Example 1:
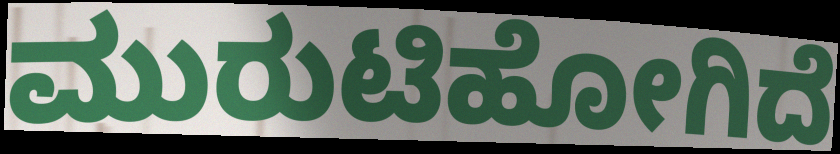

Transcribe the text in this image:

ಮುರುಟಿಹೋಗಿದೆ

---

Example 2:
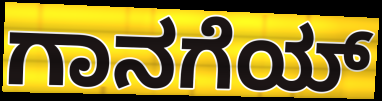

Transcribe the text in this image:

ಗಾನಗೆಯ್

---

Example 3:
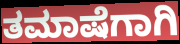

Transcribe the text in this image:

ತಮಾಷೆಗಾಗಿ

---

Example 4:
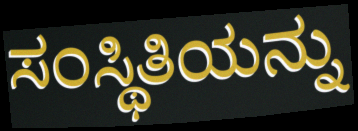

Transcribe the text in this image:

ಸಂಸ್ಥಿತಿಯನ್ನು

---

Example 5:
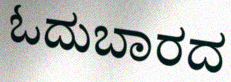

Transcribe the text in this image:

ಓದುಬಾರದ